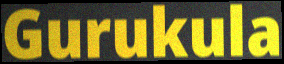
Gurukula